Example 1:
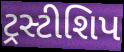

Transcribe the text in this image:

ટ્રસ્ટીશિપ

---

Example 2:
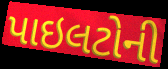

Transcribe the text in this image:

પાઇલટોની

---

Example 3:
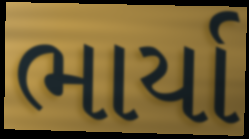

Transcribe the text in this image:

ભાર્યા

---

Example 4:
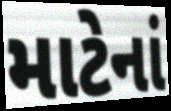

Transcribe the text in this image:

માટેનાં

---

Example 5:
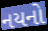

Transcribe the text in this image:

નયનો